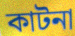
কাটনা